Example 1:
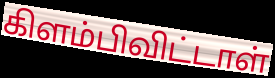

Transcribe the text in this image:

கிளம்பிவிட்டாள்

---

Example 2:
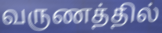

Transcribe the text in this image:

வருணத்தில்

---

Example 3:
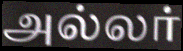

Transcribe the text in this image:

அல்லர்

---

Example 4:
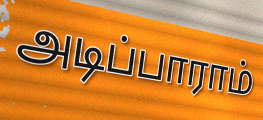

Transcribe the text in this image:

அடிப்பாராம்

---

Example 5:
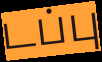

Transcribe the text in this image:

டப்பு